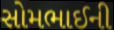
સોમભાઈની